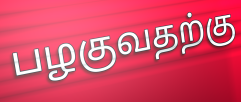
பழகுவதற்கு